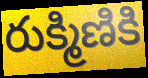
రుక్మిణికి